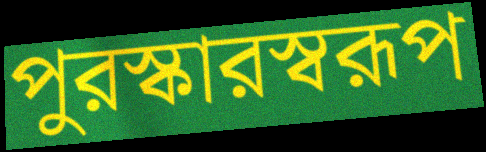
পুরস্কারস্বরূপ